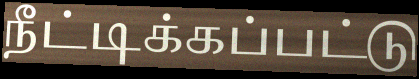
நீட்டிக்கப்பட்டு